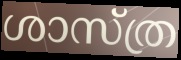
ശാസ്ത്ര